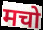
मचो